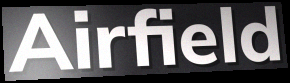
Airfield